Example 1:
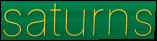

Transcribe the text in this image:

saturns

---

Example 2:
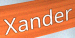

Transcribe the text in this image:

Xander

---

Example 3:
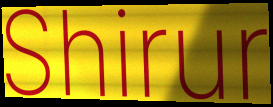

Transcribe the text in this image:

Shirur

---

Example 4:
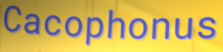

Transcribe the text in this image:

Cacophonus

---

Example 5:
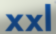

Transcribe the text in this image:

xxl